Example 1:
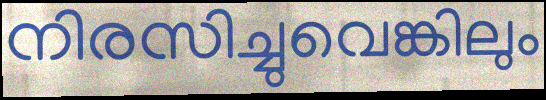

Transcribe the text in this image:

നിരസിച്ചുവെങ്കിലും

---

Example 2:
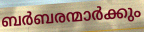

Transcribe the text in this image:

ബർബരന്മാർക്കും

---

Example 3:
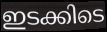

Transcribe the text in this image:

ഇടക്കിടെ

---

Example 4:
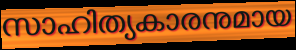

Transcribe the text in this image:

സാഹിത്യകാരനുമായ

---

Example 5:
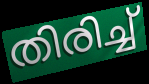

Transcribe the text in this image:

തിരിച്ച്